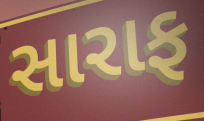
સારાફ